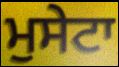
ਮੁਸੇਟਾ